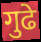
गुढे